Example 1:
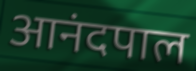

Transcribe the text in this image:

आनंदपाल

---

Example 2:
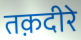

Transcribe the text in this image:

तक़दीरे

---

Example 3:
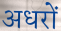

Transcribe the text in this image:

अधरों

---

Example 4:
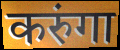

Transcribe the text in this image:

करुंगा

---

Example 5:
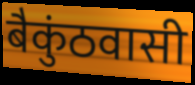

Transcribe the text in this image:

बैकुंठवासी